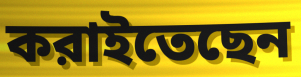
করাইতেছেন